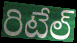
రిటేల్